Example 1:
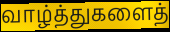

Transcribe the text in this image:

வாழ்த்துகளைத்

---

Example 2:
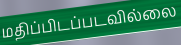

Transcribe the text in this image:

மதிப்பிடப்படவில்லை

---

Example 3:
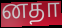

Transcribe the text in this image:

னதா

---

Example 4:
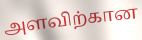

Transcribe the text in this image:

அளவிற்கான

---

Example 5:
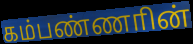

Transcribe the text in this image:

கம்பண்ணரின்